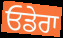
ਓਡੇਰਾ